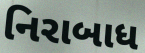
નિરાબાધ